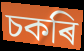
চকৰি